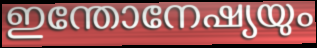
ഇന്തോനേഷ്യയും